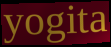
yogita